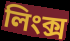
লিংক্স